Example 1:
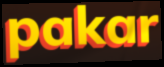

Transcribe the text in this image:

pakar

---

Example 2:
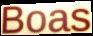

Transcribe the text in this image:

Boas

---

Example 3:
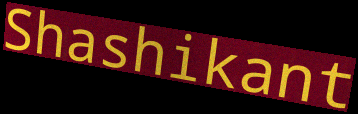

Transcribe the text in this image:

Shashikant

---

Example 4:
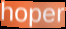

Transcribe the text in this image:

hoper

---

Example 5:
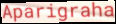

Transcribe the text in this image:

Aparigraha